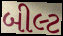
બીલ્ટ